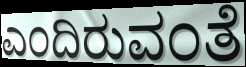
ಎಂದಿರುವಂತೆ